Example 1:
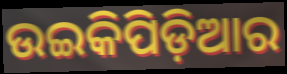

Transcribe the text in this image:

ଉଇକିପିଡ଼ିଆର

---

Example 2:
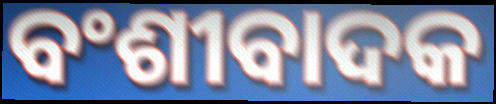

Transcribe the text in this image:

ବଂଶୀବାଦକ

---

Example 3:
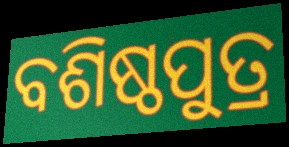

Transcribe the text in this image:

ବଶିଷ୍ଠପୁତ୍ର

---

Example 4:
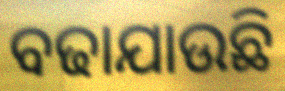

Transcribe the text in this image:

ବଢାଯାଉଛି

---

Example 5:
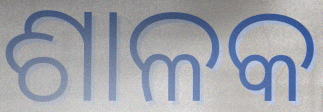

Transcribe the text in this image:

ଶାଳକ